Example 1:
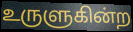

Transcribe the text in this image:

உருளுகின்ற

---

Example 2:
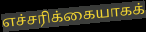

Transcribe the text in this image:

எச்சரிக்கையாகக்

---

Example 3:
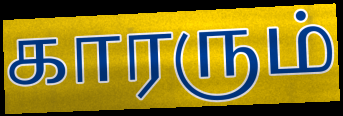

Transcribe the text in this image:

காரரும்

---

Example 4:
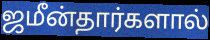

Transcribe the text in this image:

ஜமீன்தார்களால்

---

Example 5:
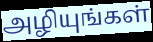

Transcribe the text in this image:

அழியுங்கள்